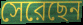
সেরেছেন